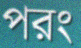
পরং